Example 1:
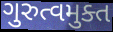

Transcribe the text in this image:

ગુરુત્વમુક્ત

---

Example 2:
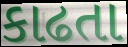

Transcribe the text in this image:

કાઢતા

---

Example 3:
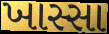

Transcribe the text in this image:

ખાસ્સા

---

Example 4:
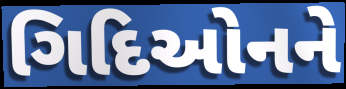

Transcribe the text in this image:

ગિદિઓનને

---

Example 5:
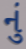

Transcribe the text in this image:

નું